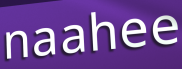
naahee